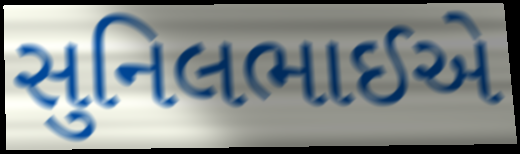
સુનિલભાઈએ